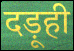
दड़ूही